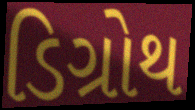
ડિગ્રોથ